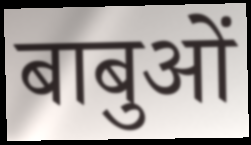
बाबुओं